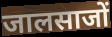
जालसाजों